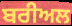
ਬਰੀਅਲ